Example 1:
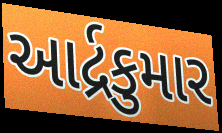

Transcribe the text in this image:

આર્દ્રકુમાર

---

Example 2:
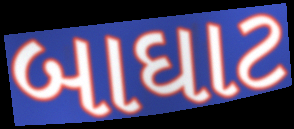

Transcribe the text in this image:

બાઘાટ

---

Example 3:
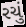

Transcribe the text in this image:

રચું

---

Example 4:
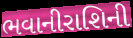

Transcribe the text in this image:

ભવાનીરાશિની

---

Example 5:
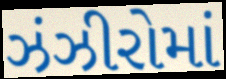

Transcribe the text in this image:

ઝંઝીરોમાં